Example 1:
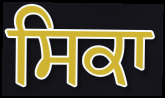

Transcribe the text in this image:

ਸਿਕਾ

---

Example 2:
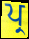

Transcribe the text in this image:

ਪ੍ਰ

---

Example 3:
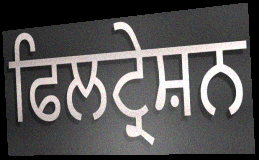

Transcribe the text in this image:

ਫਿਲਟ੍ਰੇਸ਼ਨ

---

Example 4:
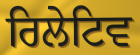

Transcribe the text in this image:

ਰਿਲੇਟਿਵ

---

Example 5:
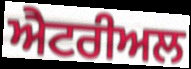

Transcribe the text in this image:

ਐਟਰੀਅਲ